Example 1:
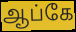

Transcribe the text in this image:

ஆப்கே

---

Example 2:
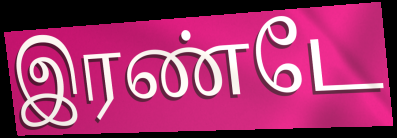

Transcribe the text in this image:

இரண்டே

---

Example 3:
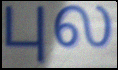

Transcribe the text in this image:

புல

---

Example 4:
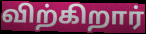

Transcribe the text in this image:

விற்கிறார்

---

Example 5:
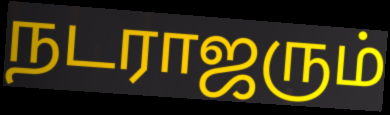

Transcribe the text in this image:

நடராஜரும்